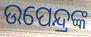
ଉପେନ୍ଦ୍ରଙ୍କ